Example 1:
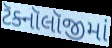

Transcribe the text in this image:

ટૅક્નૉલૉજીમાં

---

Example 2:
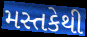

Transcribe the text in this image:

મસ્તકેથી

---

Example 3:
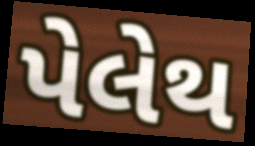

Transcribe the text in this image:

પેલેથ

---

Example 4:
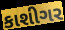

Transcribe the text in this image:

કાશીગર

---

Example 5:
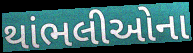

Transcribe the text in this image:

થાંભલીઓના